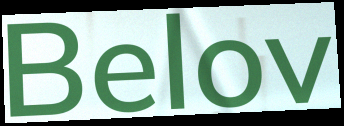
Belov